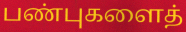
பண்புகளைத்